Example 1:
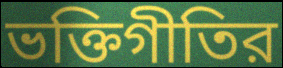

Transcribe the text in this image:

ভক্তিগীতির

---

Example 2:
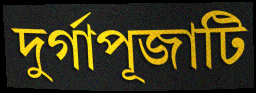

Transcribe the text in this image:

দুর্গাপূজাটি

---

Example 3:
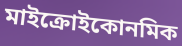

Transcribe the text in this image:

মাইক্রোইকোনমিক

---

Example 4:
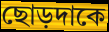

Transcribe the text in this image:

ছোড়দাকে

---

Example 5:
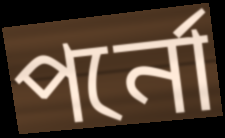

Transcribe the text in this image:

পর্নো